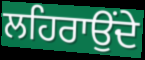
ਲਹਿਰਾਉਂਦੇ